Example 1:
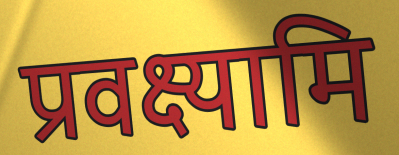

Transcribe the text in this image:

प्रवक्ष्यामि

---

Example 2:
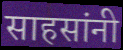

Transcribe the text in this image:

साहसांनी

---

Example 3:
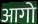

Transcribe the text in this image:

आगो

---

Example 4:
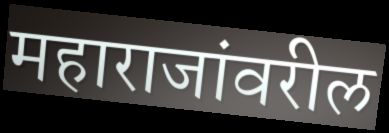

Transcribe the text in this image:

महाराजांवरील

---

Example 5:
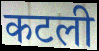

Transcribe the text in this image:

कटली